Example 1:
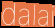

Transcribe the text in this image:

dalai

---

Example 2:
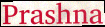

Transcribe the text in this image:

Prashna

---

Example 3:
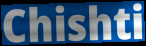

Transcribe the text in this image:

Chishti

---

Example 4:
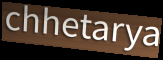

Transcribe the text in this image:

chhetarya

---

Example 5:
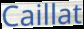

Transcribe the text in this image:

Caillat